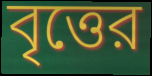
বৃত্তের